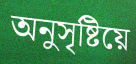
অনুসৃষ্টিয়ে